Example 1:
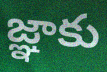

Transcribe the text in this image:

జ్ఞాకు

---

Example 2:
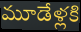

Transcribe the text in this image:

మూడేళ్లకి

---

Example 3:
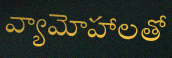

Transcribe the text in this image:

వ్యామోహాలతో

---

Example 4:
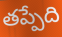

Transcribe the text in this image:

తప్పేది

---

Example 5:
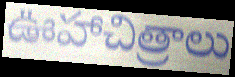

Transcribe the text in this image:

ఊహాచిత్రాలు